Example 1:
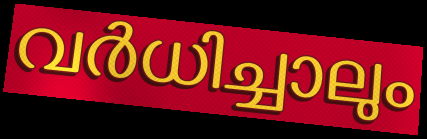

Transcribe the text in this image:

വർധിച്ചാലും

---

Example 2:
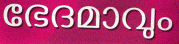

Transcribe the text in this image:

ഭേദമാവും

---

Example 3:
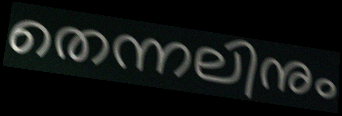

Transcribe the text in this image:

തെന്നലിനും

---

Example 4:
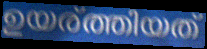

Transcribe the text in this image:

ഉയര്ത്തിയത്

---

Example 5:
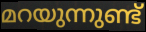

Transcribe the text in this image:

മറയുന്നുണ്ട്